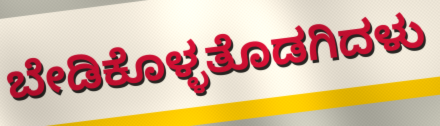
ಬೇಡಿಕೊಳ್ಳತೊಡಗಿದಳು